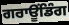
ਗਰਾਊਂਡਿੰਗ